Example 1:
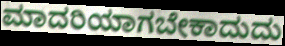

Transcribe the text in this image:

ಮಾದರಿಯಾಗಬೇಕಾದುದು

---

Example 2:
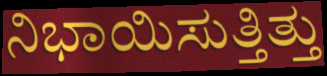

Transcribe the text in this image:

ನಿಭಾಯಿಸುತ್ತಿತ್ತು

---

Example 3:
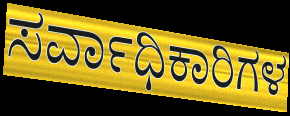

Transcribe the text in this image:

ಸರ್ವಾಧಿಕಾರಿಗಳ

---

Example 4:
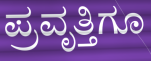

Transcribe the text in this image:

ಪ್ರವೃತ್ತಿಗೂ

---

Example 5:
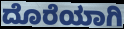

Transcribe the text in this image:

ದೊರೆಯಾಗಿ